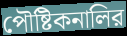
পৌষ্টিকনালির